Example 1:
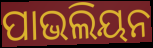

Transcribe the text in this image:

ପାଭଲିୟନ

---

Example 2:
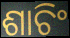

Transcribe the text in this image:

ଶାଚିଂ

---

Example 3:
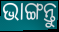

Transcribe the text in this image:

ଭାଙ୍ଗନ୍ତୁ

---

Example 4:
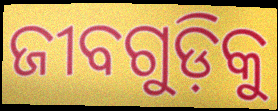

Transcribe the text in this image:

ଜୀବଗୁଡ଼ିକୁ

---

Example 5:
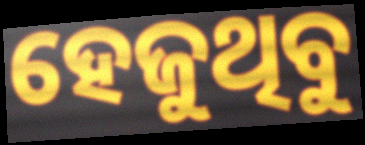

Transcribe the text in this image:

ହେଜୁଥିବୁ